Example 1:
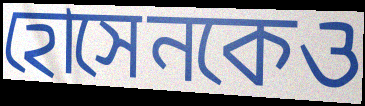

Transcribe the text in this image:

হোসেনকেও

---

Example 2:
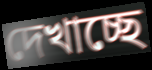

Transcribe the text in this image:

দেখাচ্ছে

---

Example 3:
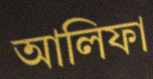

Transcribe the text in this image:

আলিফা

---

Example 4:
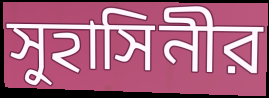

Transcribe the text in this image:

সুহাসিনীর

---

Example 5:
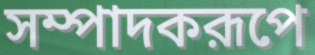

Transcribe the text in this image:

সম্পাদকরূপে